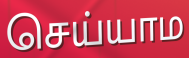
செய்யாம